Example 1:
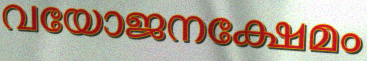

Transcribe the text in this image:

വയോജനക്ഷേമം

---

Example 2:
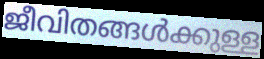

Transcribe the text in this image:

ജീവിതങ്ങൾക്കുള്ള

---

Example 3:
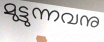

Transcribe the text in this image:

മുട്ടുന്നവനു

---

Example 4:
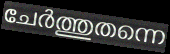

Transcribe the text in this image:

ചേർത്തുതന്നെ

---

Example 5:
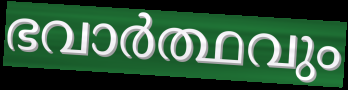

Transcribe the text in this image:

ഭവാർത്ഥവും